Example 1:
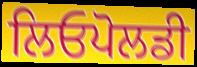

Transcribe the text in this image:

ਲਿਓਪੋਲਡੀ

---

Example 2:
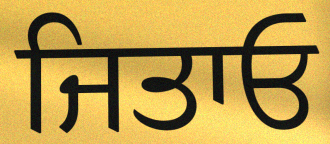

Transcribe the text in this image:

ਜਿਤਾਓ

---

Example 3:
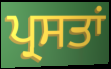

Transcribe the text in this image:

ਪ੍ਰਸਤਾਂ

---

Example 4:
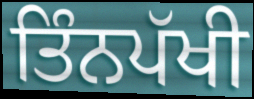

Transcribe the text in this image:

ਤਿੰਨਪੱਖੀ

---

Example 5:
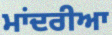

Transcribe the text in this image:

ਮਾਂਦਰੀਆ